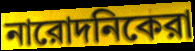
নারোদনিকেরা